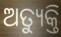
ଅତ୍ୟୁକ୍ତି